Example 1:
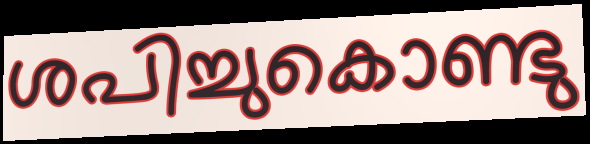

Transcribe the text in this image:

ശപിച്ചുകൊണ്ടു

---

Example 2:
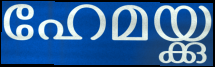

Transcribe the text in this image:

ഹേമയ്ക്കു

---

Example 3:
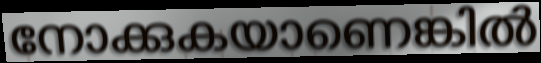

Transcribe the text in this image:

നോക്കുകയാണെങ്കിൽ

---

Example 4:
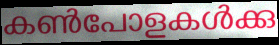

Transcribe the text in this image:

കൺപോളകൾക്കു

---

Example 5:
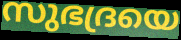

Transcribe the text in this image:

സുഭദ്രയെ